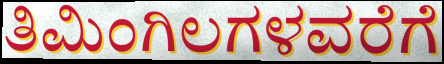
ತಿಮಿಂಗಿಲಗಳವರೆಗೆ